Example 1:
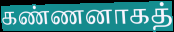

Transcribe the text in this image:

கண்ணனாகத்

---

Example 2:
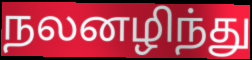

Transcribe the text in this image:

நலனழிந்து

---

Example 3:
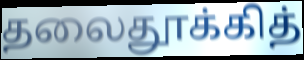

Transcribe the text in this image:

தலைதூக்கித்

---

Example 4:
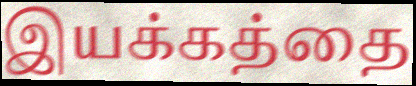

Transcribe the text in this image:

இயக்கத்தை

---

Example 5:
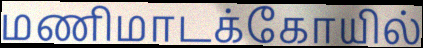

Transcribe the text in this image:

மணிமாடக்கோயில்